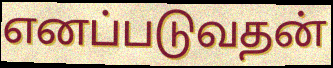
எனப்படுவதன்